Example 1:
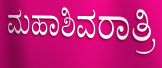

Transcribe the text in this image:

ಮಹಾಶಿವರಾತ್ರಿ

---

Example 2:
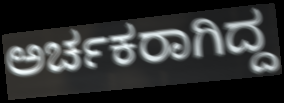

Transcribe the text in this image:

ಅರ್ಚಕರಾಗಿದ್ದ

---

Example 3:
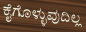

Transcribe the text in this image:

ಕೈಗೊಳ್ಳುವುದಿಲ್ಲ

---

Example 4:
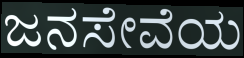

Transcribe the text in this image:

ಜನಸೇವೆಯ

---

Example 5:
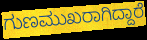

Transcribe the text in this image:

ಗುಣಮುಖರಾಗಿದ್ದಾರೆ